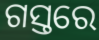
ଗସ୍ତରେ